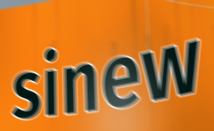
sinew